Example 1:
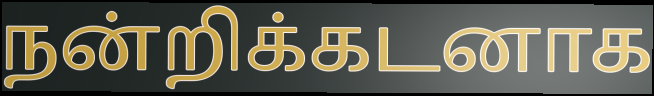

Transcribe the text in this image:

நன்றிக்கடனாக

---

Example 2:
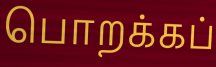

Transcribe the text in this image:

பொறக்கப்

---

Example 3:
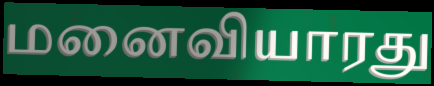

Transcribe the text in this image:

மனைவியாரது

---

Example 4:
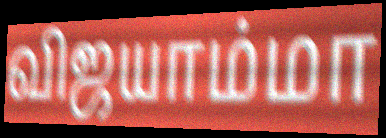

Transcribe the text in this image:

விஜயாம்மா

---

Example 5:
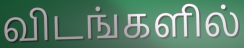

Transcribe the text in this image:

விடங்களில்